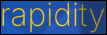
rapidity